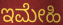
ಇಮೇಹಿ